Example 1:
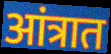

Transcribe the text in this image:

आंत्रात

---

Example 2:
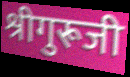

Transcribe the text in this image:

श्रीगुरूजी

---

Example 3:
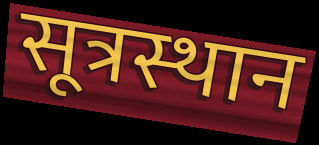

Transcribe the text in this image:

सूत्रस्थान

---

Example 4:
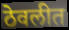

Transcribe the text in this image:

ठेवलीत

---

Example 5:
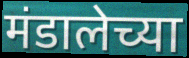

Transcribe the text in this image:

मंडालेच्या